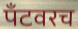
पँटवरच